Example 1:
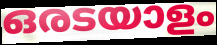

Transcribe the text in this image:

ഒരടയാളം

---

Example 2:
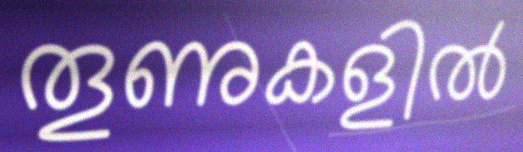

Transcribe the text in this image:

തൂണുകളിൽ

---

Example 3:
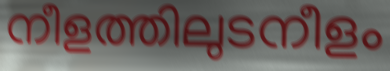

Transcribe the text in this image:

നീളത്തിലുടനീളം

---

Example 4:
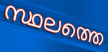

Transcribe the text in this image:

സ്ഥലത്തെ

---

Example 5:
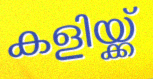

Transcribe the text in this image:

കളിയ്ക്ക്